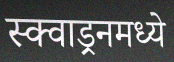
स्क्वाड्रनमध्ये